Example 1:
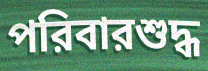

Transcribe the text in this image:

পরিবারশুদ্ধ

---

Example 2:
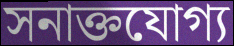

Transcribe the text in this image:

সনাক্তযোগ্য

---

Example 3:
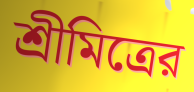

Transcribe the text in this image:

শ্রীমিত্রের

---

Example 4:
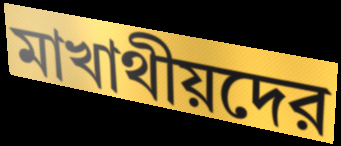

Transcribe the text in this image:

মাখাথীয়দের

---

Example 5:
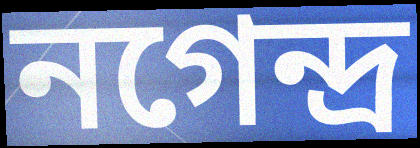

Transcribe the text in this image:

নগেন্দ্র